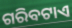
ଗରିବଟାଏ